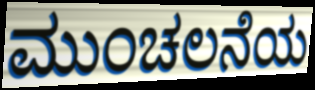
ಮುಂಚಲನೆಯ